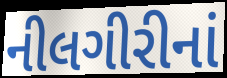
નીલગીરીનાં